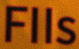
FIIs